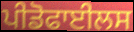
ਪੀਡੋਫਾਈਲਸ